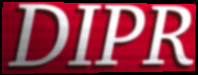
DIPR